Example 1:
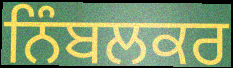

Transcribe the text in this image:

ਨਿੰਬਲਕਰ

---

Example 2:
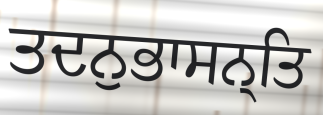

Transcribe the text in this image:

ਤਦਨੁਭਾਸਨ੍ਤਿ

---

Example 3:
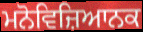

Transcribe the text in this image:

ਮਨੋਵਿਜ਼ਿਆਨਕ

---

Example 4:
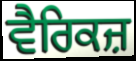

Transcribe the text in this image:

ਵੈਰਿਕਜ਼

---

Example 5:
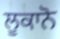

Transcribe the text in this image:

ਲੂਕਾਨੋ